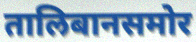
तालिबानसमोर